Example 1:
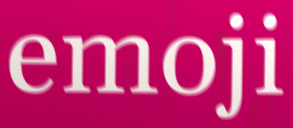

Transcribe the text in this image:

emoji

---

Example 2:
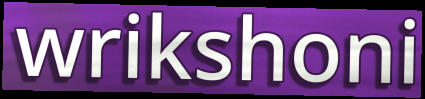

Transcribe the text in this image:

wrikshoni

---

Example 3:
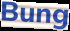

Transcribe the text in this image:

Bung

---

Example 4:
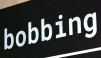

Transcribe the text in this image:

bobbing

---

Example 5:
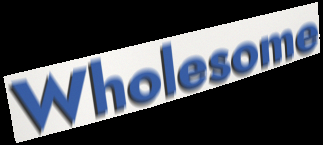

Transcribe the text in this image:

Wholesome